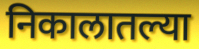
निकालातल्या